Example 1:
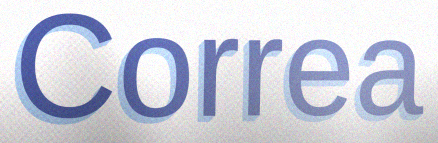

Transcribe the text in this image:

Correa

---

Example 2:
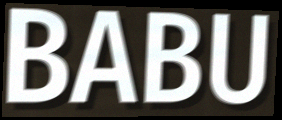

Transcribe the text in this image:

BABU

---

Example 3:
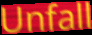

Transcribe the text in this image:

Unfall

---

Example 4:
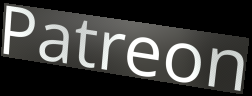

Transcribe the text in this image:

Patreon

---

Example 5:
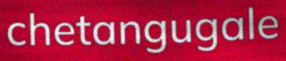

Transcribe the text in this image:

chetangugale